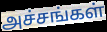
அச்சங்கள்